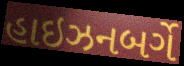
હાઇઝનબર્ગે